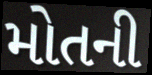
મોતની